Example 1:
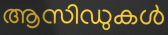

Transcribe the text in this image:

ആസിഡുകൾ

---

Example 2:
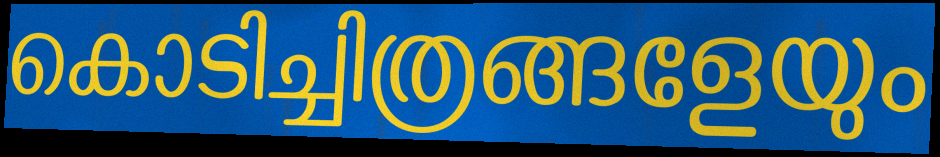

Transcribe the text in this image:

കൊടിച്ചിത്രങ്ങളേയും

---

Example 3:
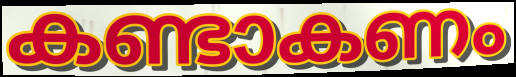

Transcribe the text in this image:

കണ്ടാകണം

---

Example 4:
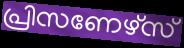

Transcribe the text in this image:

പ്രിസണേഴ്സ്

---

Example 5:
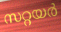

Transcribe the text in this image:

സറ്റയർ